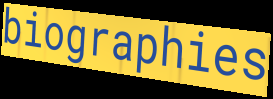
biographies